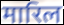
मारिल